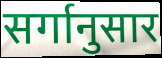
सर्गानुसार